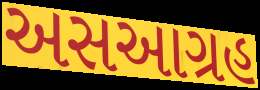
અસઆગ્રહ